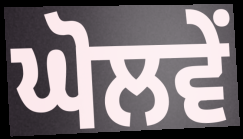
ਘੋਲਵੇਂ